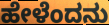
ಹೇಳೆಂದನು